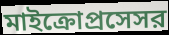
মাইক্রোপ্রসেসর